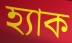
হ্যাক